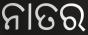
ନାତର